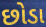
છોડા